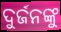
ଦୁର୍ଜନଙ୍କୁ